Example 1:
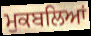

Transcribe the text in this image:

ਮੁਕਬਲਿਆਂ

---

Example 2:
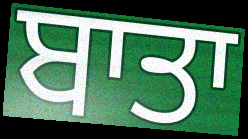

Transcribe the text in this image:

ਬਾਤਾ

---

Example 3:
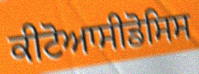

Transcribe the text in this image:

ਕੀਟੋਆਸੀਡੋਸਿਸ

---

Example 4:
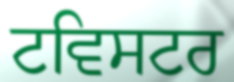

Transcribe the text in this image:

ਟਵਿਸਟਰ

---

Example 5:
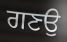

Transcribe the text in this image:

ਗਣਉ